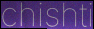
chishti